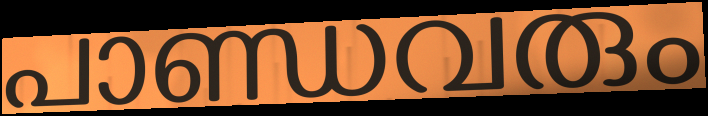
പാണ്ഡവരും